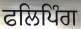
ਫਲਿਪਿੰਗ